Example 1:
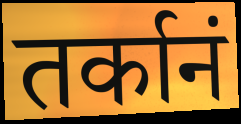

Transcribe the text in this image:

तर्कानं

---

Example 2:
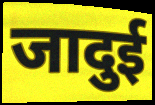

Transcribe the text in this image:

जादुई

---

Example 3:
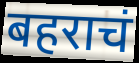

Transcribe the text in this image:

बहराचं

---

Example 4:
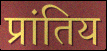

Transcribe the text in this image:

प्रांतिय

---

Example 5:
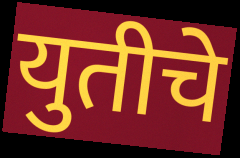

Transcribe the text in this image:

युतीचे